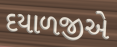
દયાળજીએ